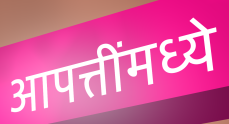
आपत्तींमध्ये